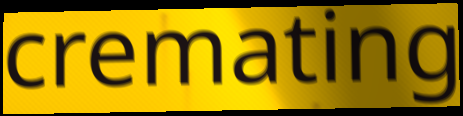
cremating